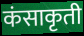
कंसाकृती